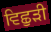
ਵਿਛੁੜੀ